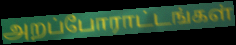
அறப்போராட்டங்கள்